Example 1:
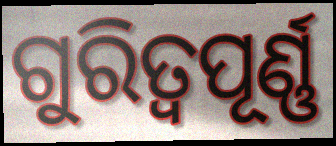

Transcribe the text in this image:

ଗୁରିତ୍ୱପୂର୍ଣ୍ଣ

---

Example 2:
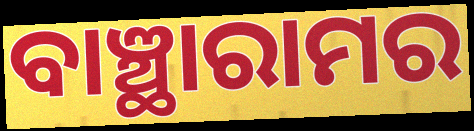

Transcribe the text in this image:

ବାଞ୍ଛାରାମର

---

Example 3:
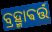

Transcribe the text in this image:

ବ୍ରହ୍ମାଵର୍ତ୍ତ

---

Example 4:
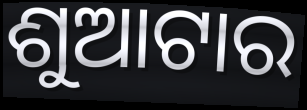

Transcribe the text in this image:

ଶୁଆଟାର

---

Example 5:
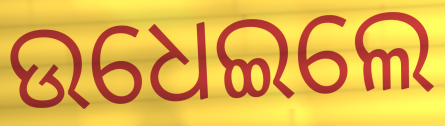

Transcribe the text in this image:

ଉଧେଇଲେ